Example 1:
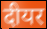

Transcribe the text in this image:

दीयर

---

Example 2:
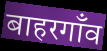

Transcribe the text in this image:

बाहरगाँव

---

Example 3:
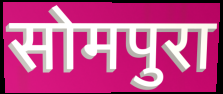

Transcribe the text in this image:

सोमपुरा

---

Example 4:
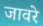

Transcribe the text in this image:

जावरे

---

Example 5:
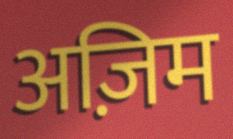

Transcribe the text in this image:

अज़िम